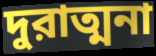
দুরাত্মনা